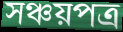
সঞ্চয়পত্র